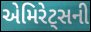
એમિરેટ્સની